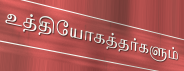
உத்தியோகத்தர்களும்